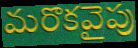
మరొకవైపు